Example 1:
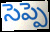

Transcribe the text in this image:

సెప్పె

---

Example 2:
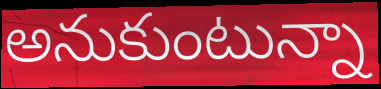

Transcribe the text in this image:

అనుకుంటున్నా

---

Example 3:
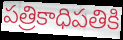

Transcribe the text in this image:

పత్రికాధిపతికి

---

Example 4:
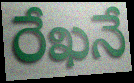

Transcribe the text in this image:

రేఖనే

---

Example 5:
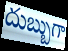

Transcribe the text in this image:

దుబ్బుగా